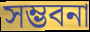
সম্ভবনা